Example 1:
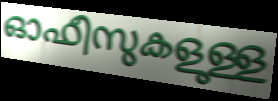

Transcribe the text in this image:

ഓഫീസുകളുള്ള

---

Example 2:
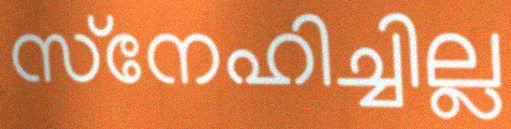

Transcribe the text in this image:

സ്‌നേഹിച്ചില്ല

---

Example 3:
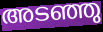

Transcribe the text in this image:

അടഞ്ഞു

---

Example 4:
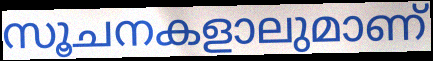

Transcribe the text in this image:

സൂചനകളാലുമാണ്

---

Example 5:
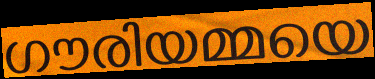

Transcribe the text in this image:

ഗൗരിയമ്മയെ